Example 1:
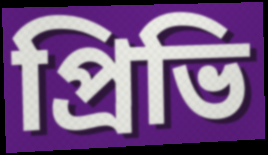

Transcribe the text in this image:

প্রিভি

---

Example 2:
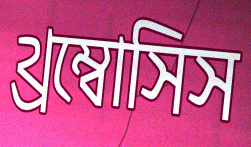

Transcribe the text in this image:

থ্রম্বোসিস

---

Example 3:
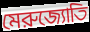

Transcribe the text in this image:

মেরুজ্যোতি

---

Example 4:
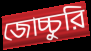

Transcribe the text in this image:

জোচ্চুরি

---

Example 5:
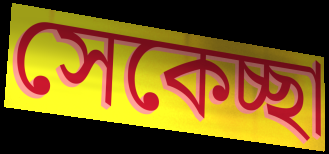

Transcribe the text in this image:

সেকেচ্ছা